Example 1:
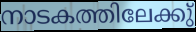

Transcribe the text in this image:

നാടകത്തിലേക്കു്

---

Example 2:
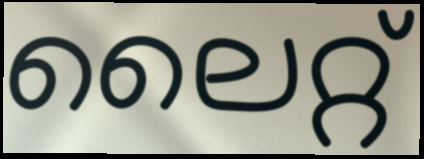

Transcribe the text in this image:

ലൈറ്റ്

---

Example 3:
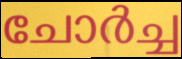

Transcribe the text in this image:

ചോർച്ച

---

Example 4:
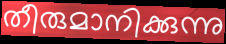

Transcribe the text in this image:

തീരുമാനിക്കുന്നു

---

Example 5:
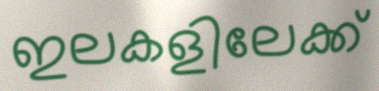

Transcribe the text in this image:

ഇലകളിലേക്ക്